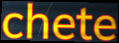
chete